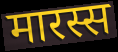
मारस्स